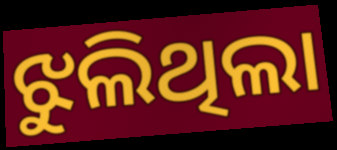
ଝୁଲିଥିଲା